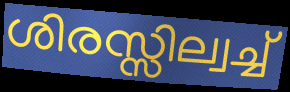
ശിരസ്സില്വച്ച്